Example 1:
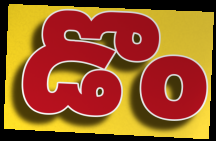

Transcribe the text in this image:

డొం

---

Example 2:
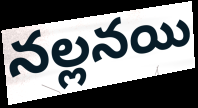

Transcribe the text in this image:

నల్లనయి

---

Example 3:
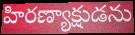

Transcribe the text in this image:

హిరణ్యాక్షుడను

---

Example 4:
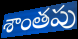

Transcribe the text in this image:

శాంతపు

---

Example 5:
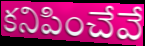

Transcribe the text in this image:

కనిపించేవే